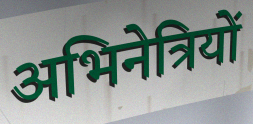
अभिनेत्रियों